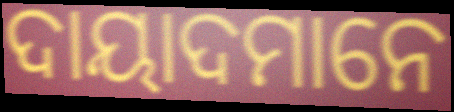
ଦାୟାଦମାନେ